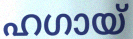
ഹഗായ്